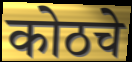
कोठचे